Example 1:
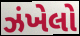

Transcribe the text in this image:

ઝંખેલો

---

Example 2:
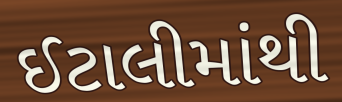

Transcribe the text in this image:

ઈટાલીમાંથી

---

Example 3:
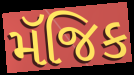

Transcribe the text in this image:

મૅજિક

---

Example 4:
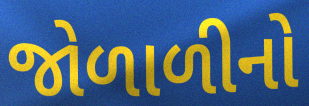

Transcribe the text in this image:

જોળાળીનો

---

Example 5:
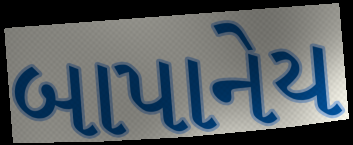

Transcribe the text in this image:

બાપાનેય